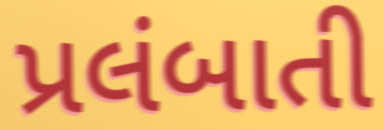
પ્રલંબાતી